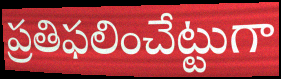
ప్రతిఫలించేట్టుగా